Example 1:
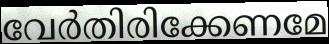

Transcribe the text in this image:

വേർതിരിക്കേണമേ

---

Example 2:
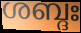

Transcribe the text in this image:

ശബ്ദഃ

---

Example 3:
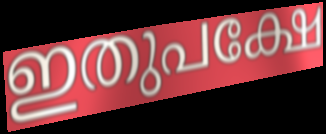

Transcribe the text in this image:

ഇതുപക്ഷേ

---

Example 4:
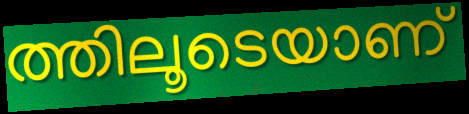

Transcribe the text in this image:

ത്തിലൂടെയാണ്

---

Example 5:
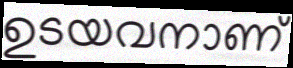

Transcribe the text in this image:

ഉടയവനാണ്